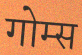
गोम्स